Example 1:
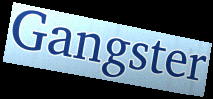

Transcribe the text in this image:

Gangster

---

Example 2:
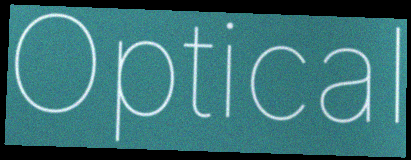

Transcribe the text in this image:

Optical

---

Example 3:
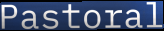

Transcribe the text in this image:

Pastoral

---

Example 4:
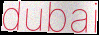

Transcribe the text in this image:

dubai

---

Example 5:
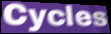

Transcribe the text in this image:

Cycles